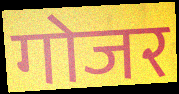
गोजर